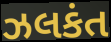
ઝલકંત